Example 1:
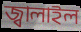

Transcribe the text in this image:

জ্বালাইল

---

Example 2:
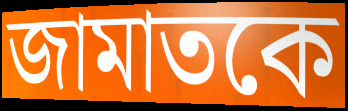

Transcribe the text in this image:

জামাতকে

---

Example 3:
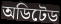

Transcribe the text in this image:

অডিটেড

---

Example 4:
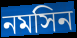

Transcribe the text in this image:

নমসিন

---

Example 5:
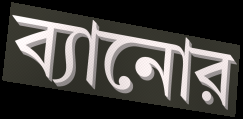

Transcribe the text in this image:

ব্যানোর